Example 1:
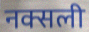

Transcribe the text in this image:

नक्सली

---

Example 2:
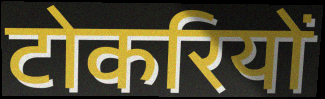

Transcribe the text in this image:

टोकरियों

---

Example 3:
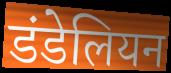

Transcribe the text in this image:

डंडेलियन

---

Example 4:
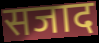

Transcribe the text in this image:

सजाद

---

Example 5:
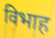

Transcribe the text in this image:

विभाह